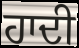
ਹਾਦੀ